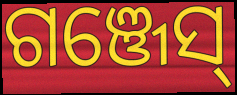
ଗଞ୍ଜେସ୍